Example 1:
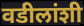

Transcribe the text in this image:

वडीलांशी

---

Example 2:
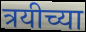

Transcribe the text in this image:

त्रयीच्या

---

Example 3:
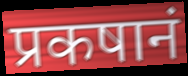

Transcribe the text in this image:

प्रकषानं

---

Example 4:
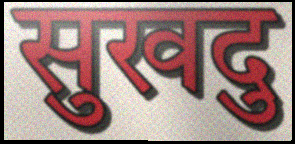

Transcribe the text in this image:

सुखदु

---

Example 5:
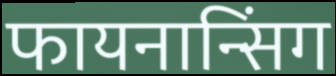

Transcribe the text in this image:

फायनान्सिंग